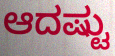
ಆದಷ್ಟು